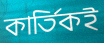
কার্তিকই